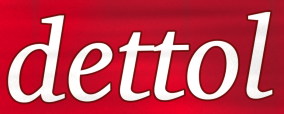
dettol